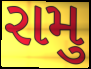
રામુ